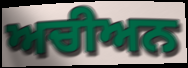
ਅਚੀਅਨ